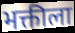
भक्तीला